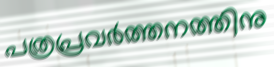
പത്രപ്രവർത്തനത്തിനു